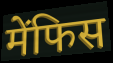
मेंफिस